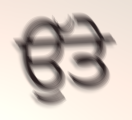
ਉੱਤੇ